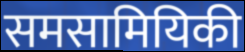
समसामियिकी